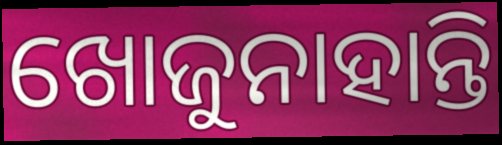
ଖୋଜୁନାହାନ୍ତି